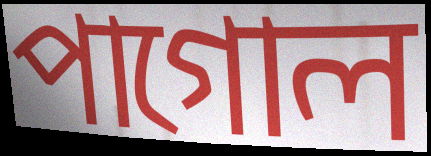
পাগোল